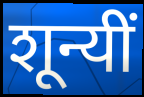
शून्यीं